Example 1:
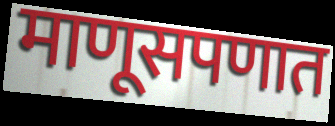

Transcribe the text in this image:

माणूसपणात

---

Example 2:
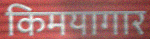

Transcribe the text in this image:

किमयागार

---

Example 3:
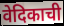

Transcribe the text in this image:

वेदिकाची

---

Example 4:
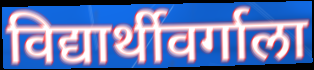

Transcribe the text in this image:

विद्यार्थीवर्गाला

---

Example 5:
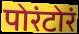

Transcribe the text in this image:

पोरंटोरं